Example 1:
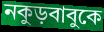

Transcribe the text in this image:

নকুড়বাবুকে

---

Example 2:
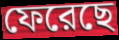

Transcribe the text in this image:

ফেরেছে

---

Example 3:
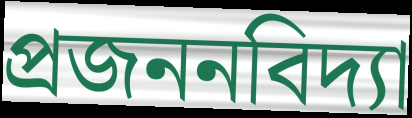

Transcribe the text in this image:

প্রজননবিদ্যা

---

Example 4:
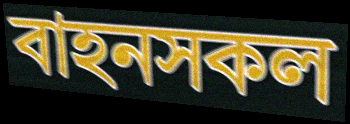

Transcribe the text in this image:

বাহনসকল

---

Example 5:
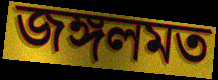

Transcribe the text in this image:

জঙ্গলমত